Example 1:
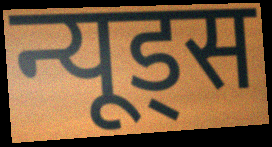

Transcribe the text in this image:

न्यूड्स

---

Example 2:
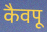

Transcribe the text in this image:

कैवपू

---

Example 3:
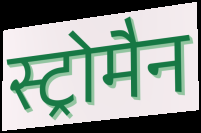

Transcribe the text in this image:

स्ट्रोमैन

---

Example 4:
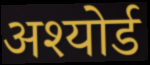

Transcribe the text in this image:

अश्योर्ड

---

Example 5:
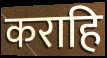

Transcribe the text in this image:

कराहि